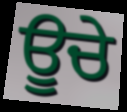
ਊਚੇ